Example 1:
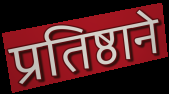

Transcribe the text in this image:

प्रतिष्ठाने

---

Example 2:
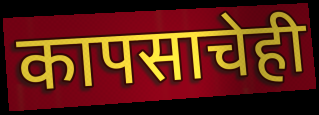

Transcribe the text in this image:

कापसाचेही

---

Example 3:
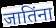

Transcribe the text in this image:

जातिंना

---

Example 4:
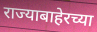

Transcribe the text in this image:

राज्याबाहेरच्या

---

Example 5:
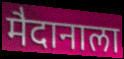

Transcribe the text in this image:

मैदानाला